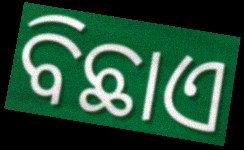
ବିଛାଏ